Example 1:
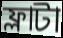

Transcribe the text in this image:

ফ্লাটা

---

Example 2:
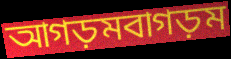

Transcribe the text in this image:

আগড়মবাগড়ম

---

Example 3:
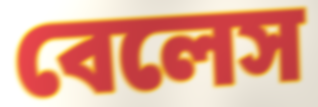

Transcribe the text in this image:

বেলেস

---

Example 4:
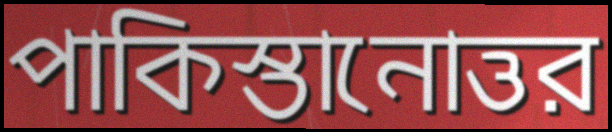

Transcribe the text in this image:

পাকিস্তানোত্তর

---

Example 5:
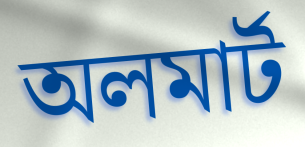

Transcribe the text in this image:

অলমার্ট